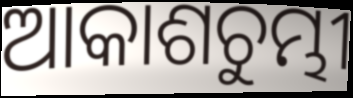
ଆକାଶଚୁମ୍ଭୀ